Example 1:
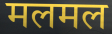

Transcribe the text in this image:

मलमल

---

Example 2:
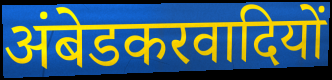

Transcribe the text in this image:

अंबेडकरवादियों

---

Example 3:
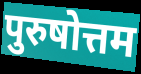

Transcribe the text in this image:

पुरुषोत्तम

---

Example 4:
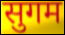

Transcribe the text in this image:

सुगम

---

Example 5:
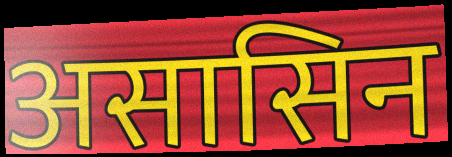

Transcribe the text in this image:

असासिन